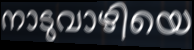
നാടുവാഴിയെ